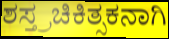
ಶಸ್ತ್ರಚಿಕಿತ್ಸಕನಾಗಿ